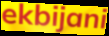
ekbijani